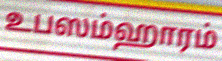
உபஸம்ஹாரம்